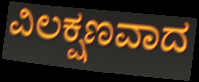
ವಿಲಕ್ಷಣವಾದ